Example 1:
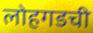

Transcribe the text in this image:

लोहगडची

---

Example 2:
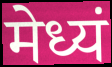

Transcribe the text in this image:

मेध्यं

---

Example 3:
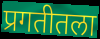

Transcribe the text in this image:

प्रगतीतला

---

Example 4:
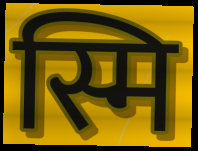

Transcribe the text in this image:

स्मि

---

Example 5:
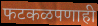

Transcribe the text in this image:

फटकळपणाही